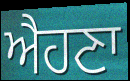
ਐਹਣਾ